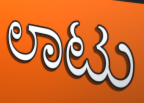
ಲಾಟು